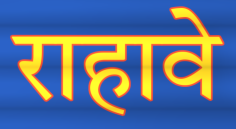
राहावे